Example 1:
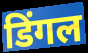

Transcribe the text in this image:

डिंगल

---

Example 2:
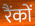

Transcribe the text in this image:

रैंकों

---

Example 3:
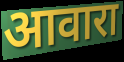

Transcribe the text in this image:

आवारा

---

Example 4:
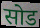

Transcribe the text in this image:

सोड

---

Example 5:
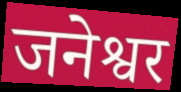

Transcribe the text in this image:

जनेश्वर